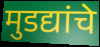
मुडद्यांचे